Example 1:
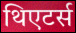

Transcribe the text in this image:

थिएटर्स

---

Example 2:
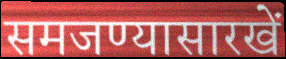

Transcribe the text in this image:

समजण्यासारखें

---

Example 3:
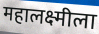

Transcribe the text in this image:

महालक्ष्मीला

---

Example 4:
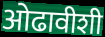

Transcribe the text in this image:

ओढावीशी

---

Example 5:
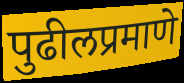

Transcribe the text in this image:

पुढीलप्रमाणे